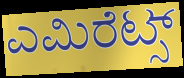
ಎಮಿರೆಟ್ಸ್